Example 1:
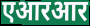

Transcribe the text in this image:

एआरआर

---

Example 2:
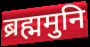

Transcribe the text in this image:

ब्रह्ममुनि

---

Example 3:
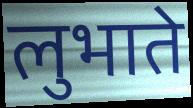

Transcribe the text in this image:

लुभाते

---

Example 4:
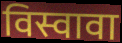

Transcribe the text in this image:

विस्वावा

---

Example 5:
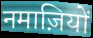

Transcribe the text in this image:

नमाज़ियों